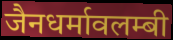
जैनधर्मावलम्बी